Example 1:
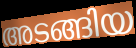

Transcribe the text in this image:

അടങ്ങിയ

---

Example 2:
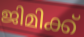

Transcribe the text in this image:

ജിമിക്ക്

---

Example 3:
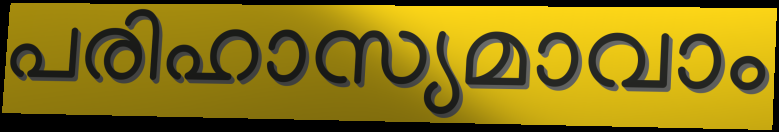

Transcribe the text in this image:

പരിഹാസ്യമാവാം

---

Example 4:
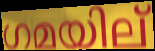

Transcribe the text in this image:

ഗമയില്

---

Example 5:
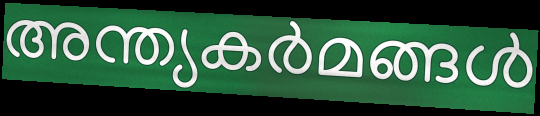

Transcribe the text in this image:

അന്ത്യകർമങ്ങൾ